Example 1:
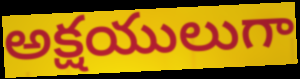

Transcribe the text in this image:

అక్షయులుగా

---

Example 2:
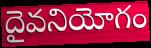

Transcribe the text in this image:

దైవనియోగం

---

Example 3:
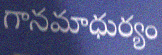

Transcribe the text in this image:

గానమాధుర్యం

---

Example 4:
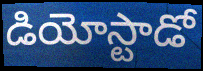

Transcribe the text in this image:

డియోస్టాడో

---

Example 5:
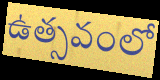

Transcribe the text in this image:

ఉత్సవంలో